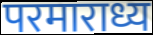
परमाराध्य